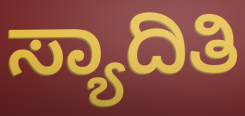
ಸ್ಯಾದಿತಿ